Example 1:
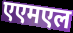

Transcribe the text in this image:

एएमएल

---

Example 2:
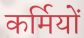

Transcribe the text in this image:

कर्मियों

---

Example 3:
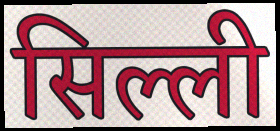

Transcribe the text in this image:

सिल्ली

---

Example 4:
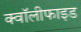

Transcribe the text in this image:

क्वॉलीफाइड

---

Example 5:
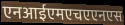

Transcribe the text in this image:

एनआईएमएचएएनएस